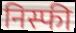
निस्फी